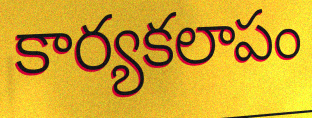
కార్యకలాపం